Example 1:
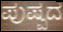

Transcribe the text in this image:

ಪುಷ್ಪದ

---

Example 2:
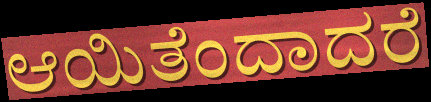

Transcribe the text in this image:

ಆಯಿತೆಂದಾದರೆ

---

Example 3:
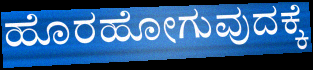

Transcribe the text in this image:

ಹೊರಹೋಗುವುದಕ್ಕೆ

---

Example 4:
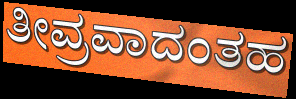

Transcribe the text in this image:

ತೀವ್ರವಾದಂತಹ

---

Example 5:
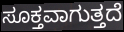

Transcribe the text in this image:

ಸೂಕ್ತವಾಗುತ್ತದೆ